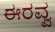
ಈರವ್ವ